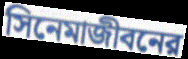
সিনেমাজীবনের